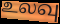
உலவு